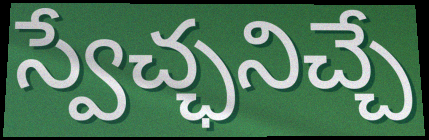
స్వేచ్ఛనిచ్చే